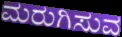
ಮರುಗಿಸುವ